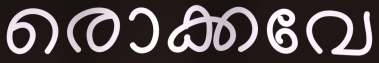
രൊക്കവേ